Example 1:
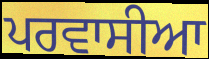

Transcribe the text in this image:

ਪਰਵਾਸੀਆ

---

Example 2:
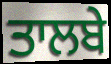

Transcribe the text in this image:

ਤਾਲਬੇ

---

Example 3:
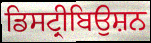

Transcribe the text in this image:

ਡਿਸਟ੍ਰੀਬਿਉਸ਼ਨ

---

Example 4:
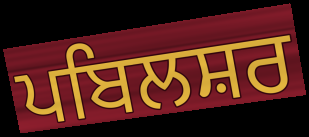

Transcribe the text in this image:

ਪਬਿਲਸ਼ਰ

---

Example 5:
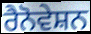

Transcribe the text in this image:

ਰੈਨੋਵੇਸ਼ਨ